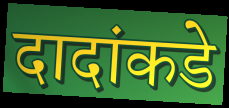
दादांकडे